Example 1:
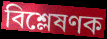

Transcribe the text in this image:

বিশ্লেষণক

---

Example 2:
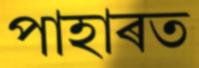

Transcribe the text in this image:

পাহাৰত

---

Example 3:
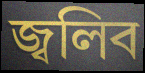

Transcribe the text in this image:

জ্বলিব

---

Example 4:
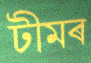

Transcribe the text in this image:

টীমৰ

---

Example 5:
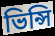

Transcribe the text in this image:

ভিন্সি